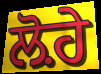
ਲ਼ੋਹੇ